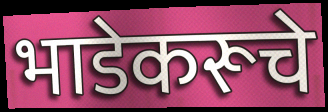
भाडेकरूचे